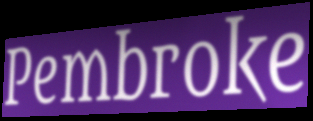
Pembroke